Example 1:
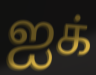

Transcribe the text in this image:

ஐக்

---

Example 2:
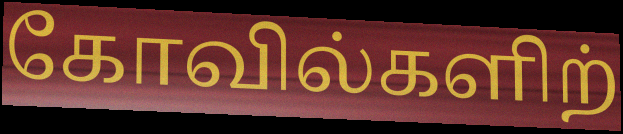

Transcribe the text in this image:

கோவில்களிற்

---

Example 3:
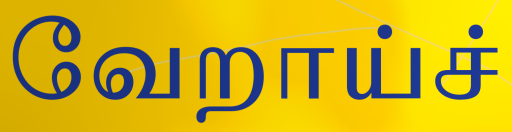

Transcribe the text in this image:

வேறாய்ச்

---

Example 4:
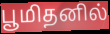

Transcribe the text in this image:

பூமிதனில்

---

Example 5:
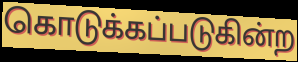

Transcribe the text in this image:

கொடுக்கப்படுகின்ற